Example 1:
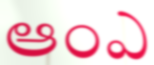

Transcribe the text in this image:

ఆంఎ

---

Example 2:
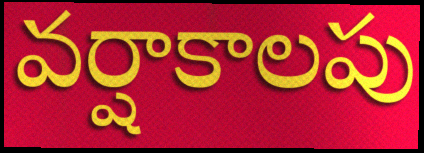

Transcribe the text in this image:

వర్షాకాలపు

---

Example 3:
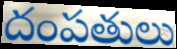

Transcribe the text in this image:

దంపతులు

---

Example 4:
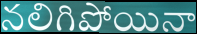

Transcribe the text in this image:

నలిగిపోయినా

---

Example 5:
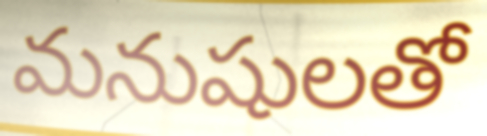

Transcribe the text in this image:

మనుషులతో